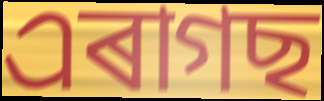
এৰাগছ